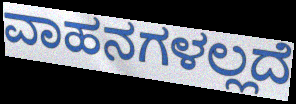
ವಾಹನಗಳಲ್ಲದೆ